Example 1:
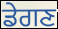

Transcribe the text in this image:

ਡੇਗਣ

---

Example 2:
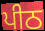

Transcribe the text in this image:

ਪੀਠ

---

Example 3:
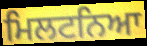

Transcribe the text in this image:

ਮਿਲਟਨਿਆ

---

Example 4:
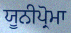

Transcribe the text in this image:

ਯੂਨੀਪ੍ਰੋਮਾ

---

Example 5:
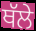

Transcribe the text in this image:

ਥੱਲੇ